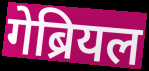
गेब्रियल